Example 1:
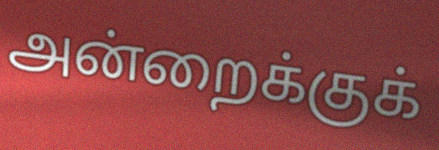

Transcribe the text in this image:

அன்றைக்குக்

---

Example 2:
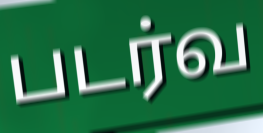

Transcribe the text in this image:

படர்வ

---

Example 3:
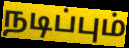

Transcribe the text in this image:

நடிப்பும்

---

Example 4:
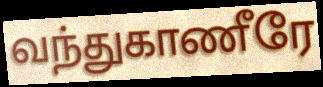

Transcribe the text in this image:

வந்துகாணீரே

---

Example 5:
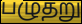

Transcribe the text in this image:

பழுதறு